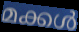
മക്കൾ